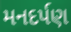
મનદર્પણ